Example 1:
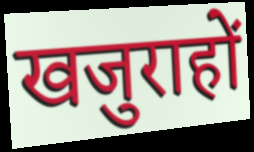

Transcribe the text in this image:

खजुराहों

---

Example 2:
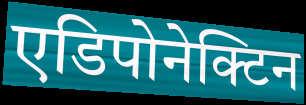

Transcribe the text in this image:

एडिपोनेक्टिन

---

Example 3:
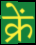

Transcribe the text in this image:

क्रें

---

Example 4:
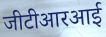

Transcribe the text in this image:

जीटीआरआई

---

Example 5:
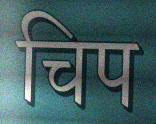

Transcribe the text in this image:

चिप